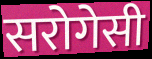
सरोगेसी